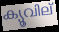
ക്യൂവില്